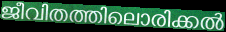
ജീവിതത്തിലൊരിക്കൽ